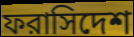
ফরাসিদেশ